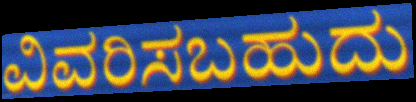
ವಿವರಿಸಬಹುದು